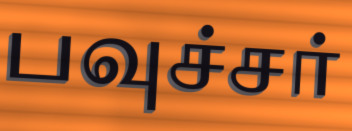
பவுச்சர்